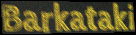
Barkataki